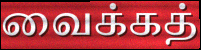
வைக்கத்